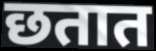
छतात